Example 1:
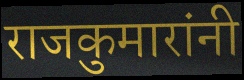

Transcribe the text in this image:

राजकुमारांनी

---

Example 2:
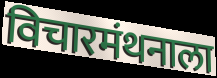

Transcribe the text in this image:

विचारमंथनाला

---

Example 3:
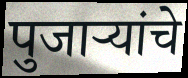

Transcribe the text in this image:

पुजाऱ्यांचे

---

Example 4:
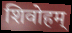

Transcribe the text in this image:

शिवोहम्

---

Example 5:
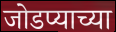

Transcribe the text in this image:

जोडप्याच्या